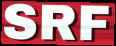
SRF